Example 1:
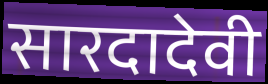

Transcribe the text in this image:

सारदादेवी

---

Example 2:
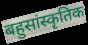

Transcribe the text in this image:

बहुसांस्कृतिक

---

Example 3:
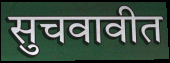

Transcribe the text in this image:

सुचवावीत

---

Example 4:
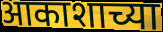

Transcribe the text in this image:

आकाशाच्या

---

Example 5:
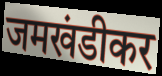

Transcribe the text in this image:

जमखंडीकर